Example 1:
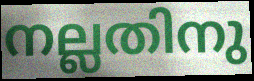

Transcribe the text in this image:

നല്ലതിനു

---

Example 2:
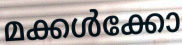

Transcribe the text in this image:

മക്കൾക്കോ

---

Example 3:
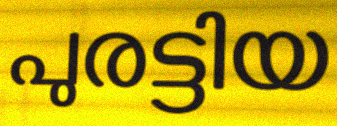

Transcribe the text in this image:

പുരട്ടിയ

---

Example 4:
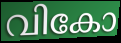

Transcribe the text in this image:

വികോ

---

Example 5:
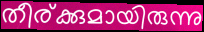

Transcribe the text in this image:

തീര്ക്കുമായിരുന്നു